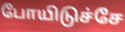
போயிடுச்சே